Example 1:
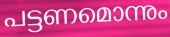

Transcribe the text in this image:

പട്ടണമൊന്നും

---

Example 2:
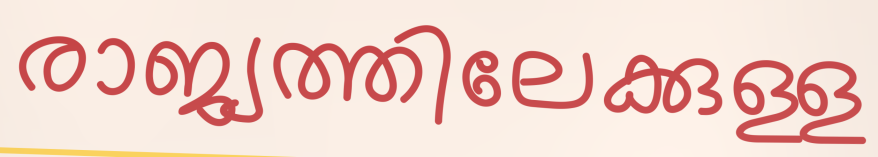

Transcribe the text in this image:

രാജ്യത്തിലേക്കുള്ള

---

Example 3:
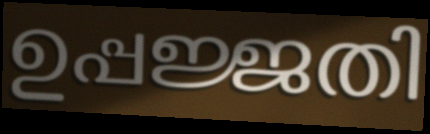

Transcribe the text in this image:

ഉപ്പജ്ജതി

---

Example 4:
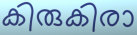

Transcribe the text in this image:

കിരുകിരാ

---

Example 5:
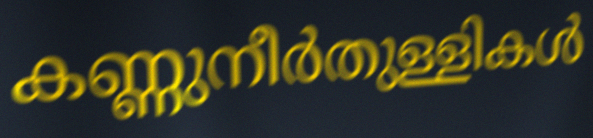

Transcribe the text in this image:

കണ്ണുനീർതുള്ളികൾ